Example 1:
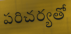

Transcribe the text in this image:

పరిచర్యతో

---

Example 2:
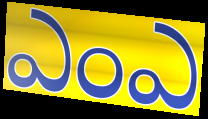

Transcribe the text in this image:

ఎంఎ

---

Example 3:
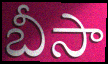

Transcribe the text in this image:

బీసా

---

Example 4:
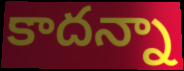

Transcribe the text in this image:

కాదన్నా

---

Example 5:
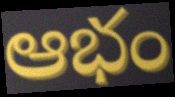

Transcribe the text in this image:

ఆభం